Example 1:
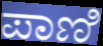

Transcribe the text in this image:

ಪಾಣಿ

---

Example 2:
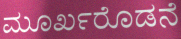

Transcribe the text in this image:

ಮೂರ್ಖರೊಡನೆ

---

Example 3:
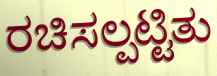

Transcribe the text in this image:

ರಚಿಸಲ್ಪಟ್ಟಿತು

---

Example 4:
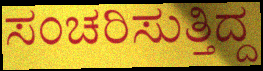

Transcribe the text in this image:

ಸಂಚರಿಸುತ್ತಿದ್ದ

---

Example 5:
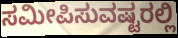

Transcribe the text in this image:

ಸಮೀಪಿಸುವಷ್ಟರಲ್ಲಿ